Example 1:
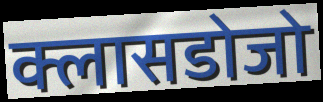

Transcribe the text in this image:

क्लासडोजो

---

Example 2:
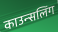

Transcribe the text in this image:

काउन्सलिंग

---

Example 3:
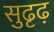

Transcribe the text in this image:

सुढृढ़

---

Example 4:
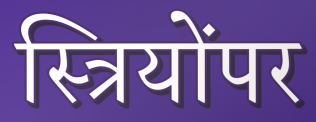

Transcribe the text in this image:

स्त्रियोंपर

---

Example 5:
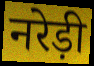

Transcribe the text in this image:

नरेड़ी